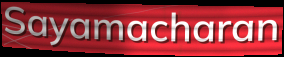
Sayamacharan